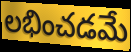
లభించడమే